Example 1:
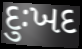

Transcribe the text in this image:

દુઃખદ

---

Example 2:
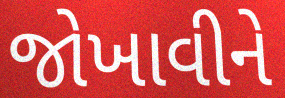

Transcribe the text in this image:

જોખાવીને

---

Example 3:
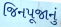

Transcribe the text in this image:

જિનપૂજાનું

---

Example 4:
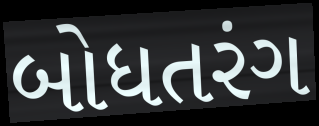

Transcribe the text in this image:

બોધતરંગ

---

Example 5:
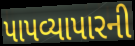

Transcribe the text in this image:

પાપવ્યાપારની